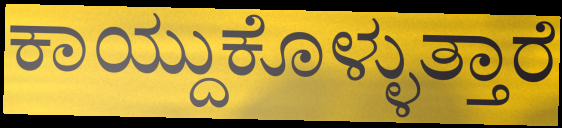
ಕಾಯ್ದುಕೊಳ್ಳುತ್ತಾರೆ